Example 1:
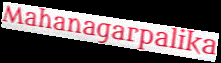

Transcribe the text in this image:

Mahanagarpalika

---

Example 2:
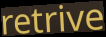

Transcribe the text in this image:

retrive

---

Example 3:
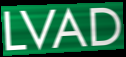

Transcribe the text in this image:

LVAD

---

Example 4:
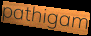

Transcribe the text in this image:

pathigam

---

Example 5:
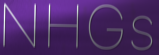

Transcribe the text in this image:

NHGs